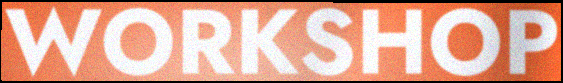
WORKSHOP